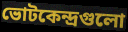
ভোটকেন্দ্রগুলো